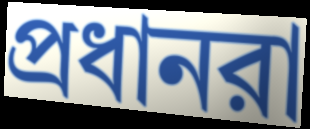
প্রধানরা